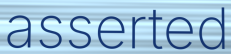
asserted